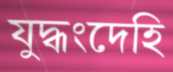
যুদ্ধংদেহি